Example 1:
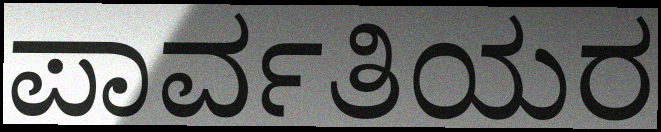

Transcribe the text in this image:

ಪಾರ್ವತಿಯರ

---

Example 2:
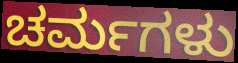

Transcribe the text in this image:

ಚರ್ಮಗಳು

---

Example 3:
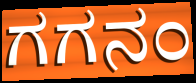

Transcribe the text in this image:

ಗಗನಂ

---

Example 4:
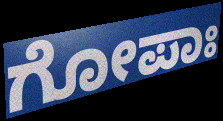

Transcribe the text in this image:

ಗೋಪಾಃ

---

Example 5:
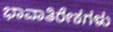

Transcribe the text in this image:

ಭಾವಾತಿರೇಕಗಳು